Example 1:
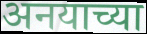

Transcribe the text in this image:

अनयाच्या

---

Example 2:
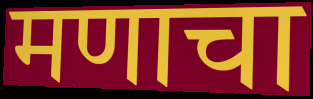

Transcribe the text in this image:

मणाचा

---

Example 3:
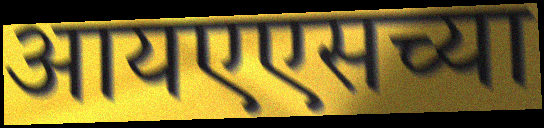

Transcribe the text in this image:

आयएएसच्या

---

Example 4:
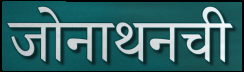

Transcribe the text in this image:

जोनाथनची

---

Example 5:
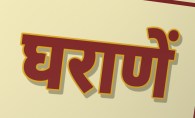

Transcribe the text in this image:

घराणें